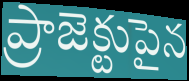
ప్రాజెక్టుపైన